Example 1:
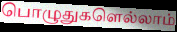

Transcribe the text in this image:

பொழுதுகளெல்லாம்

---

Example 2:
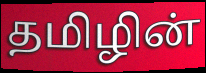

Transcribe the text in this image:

தமிழின்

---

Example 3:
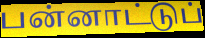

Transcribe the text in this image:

பன்னாட்டுப்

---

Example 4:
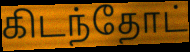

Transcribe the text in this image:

கிடந்தோட்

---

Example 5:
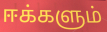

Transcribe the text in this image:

ஈக்களும்